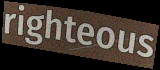
righteous